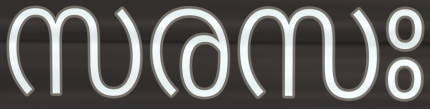
സരസഃ